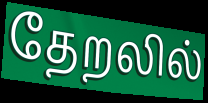
தேறலில்